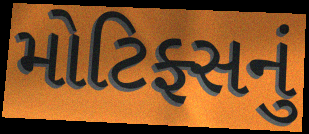
મોટિફ્સનું